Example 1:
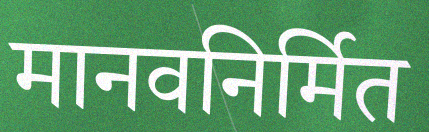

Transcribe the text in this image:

मानवनिर्मित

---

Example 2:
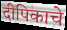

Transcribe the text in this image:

दीपिकाचे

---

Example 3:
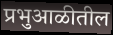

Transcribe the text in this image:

प्रभुआळीतील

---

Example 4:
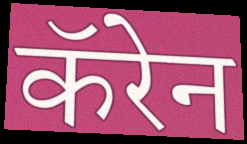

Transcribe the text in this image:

कॅरेन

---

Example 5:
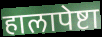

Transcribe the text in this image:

हालापेष्टा